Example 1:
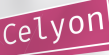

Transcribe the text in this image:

Celyon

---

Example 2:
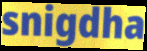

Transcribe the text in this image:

snigdha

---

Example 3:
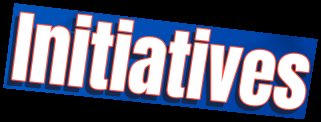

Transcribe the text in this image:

Initiatives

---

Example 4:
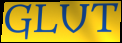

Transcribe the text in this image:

GLUT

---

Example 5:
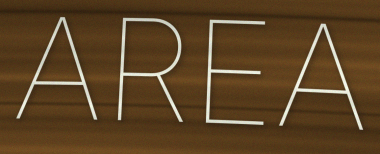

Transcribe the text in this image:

AREA